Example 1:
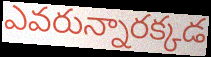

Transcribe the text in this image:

ఎవరున్నారక్కడ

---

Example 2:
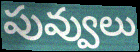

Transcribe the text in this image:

పువ్వులు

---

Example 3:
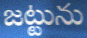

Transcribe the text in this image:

జట్టును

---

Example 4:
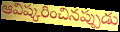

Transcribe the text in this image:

ఆవిష్కరించినప్పుడు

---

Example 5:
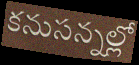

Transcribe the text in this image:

కనుసన్నల్లో